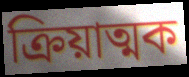
ক্ৰিয়াত্মক